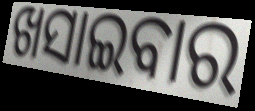
ଖସାଇବାର